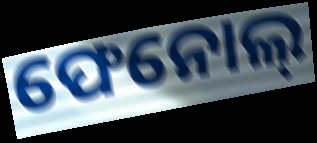
ଫେନୋଲ୍